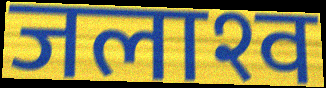
जलाश्व